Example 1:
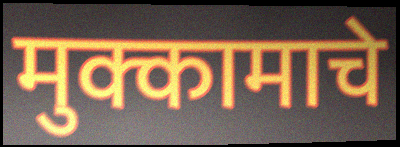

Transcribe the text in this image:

मुक्कामाचे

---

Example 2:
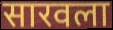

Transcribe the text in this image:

सारवला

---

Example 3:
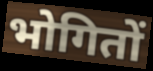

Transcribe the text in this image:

भोगितों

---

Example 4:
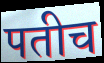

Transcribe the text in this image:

पतीच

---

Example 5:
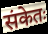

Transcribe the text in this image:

संकेतः